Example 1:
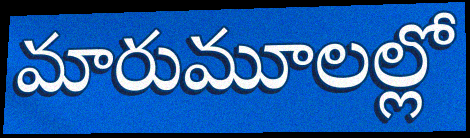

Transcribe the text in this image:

మారుమూలల్లో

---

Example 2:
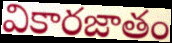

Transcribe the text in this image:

వికారజాతం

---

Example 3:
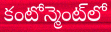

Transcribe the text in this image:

కంటోన్మెంట్‌లో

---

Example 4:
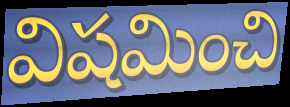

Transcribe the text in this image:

విషమించి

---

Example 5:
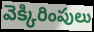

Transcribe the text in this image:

వెక్కిరింపులు